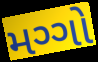
મગ્ગો